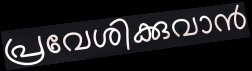
പ്രവേശിക്കുവാൻ